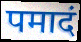
पमादं